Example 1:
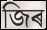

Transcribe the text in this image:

জিৰ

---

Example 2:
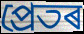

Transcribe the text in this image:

প্ৰেতৰ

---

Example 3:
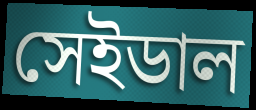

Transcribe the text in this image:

সেইডাল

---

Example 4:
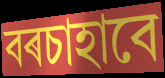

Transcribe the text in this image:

বৰচাহাবে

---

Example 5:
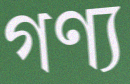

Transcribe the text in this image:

গণ্য